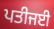
ਪਤੀਜਈ